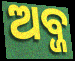
ଅବ୍ଜ